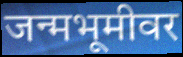
जन्मभूमीवर